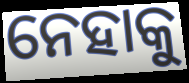
ନେହାକୁ